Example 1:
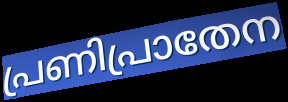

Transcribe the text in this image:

പ്രണിപ്രാതേന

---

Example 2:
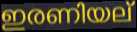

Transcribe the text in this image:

ഇരണിയല്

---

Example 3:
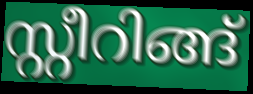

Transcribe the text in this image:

സ്റ്റീറിങ്ങ്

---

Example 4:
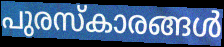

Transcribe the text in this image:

പുരസ്കാരങ്ങൾ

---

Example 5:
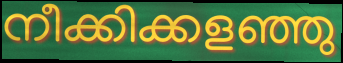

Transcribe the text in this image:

നീക്കിക്കളഞ്ഞു